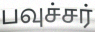
பவுச்சர்